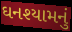
ઘનશ્યામનું